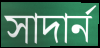
সাদার্ন